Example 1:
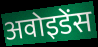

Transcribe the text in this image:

अवोइडेंस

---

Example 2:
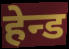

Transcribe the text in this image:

हेन्ड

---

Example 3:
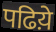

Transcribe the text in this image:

पढिय़े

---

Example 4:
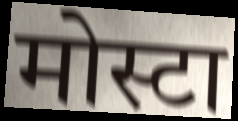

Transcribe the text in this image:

मोस्टा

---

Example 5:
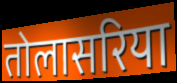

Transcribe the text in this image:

तोलासरिया